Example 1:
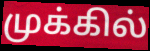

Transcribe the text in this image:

முக்கில்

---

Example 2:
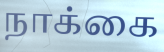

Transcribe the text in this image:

நாக்கை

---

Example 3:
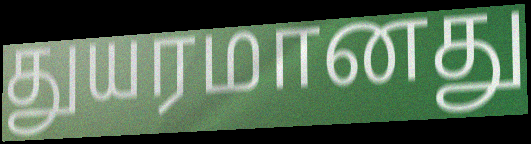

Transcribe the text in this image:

துயரமானது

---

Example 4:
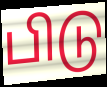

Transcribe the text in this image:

பிடு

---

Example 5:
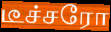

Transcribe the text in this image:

டீச்சரோ